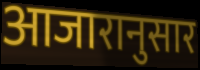
आजारानुसार